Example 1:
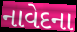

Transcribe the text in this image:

નાવેદના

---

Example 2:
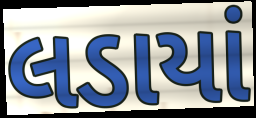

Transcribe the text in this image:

લડાયાં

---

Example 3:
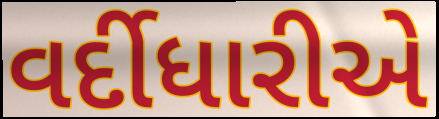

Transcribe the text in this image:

વર્દીધારીએ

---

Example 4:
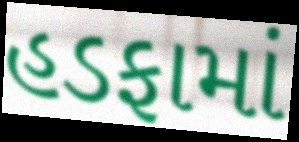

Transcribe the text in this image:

હડફામાં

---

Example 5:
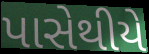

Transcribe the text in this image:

પાસેથીયે